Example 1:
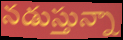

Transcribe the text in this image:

నడుస్తున్నా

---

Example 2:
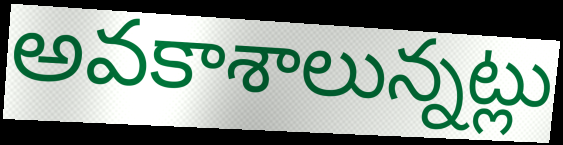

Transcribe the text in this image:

అవకాశాలున్నట్లు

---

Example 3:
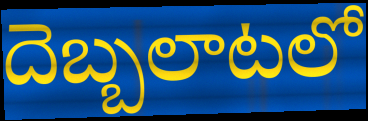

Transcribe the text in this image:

దెబ్బలాటలో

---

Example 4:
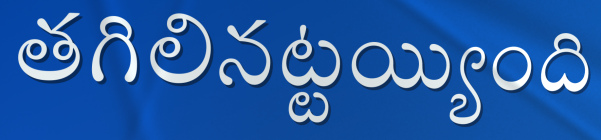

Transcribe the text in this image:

తగిలినట్టయ్యింది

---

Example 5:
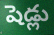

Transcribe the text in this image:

షెడ్లు